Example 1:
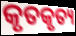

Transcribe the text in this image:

କୃତକୃତ୍ୟ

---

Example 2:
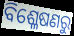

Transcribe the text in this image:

ବିଶ୍ଳେଷଣରୁ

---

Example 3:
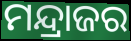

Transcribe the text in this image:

ମନ୍ଦ୍ରାଜର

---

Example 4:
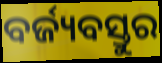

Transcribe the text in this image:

ବର୍ଜ୍ୟବସ୍ତୁର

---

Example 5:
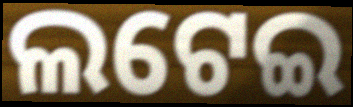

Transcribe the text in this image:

ଲଟେଇ